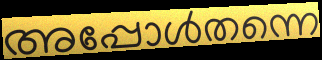
അപ്പോൾതന്നെ